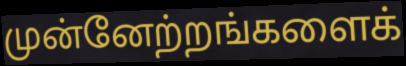
முன்னேற்றங்களைக்